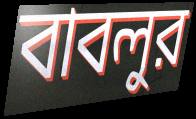
বাবলুর